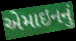
એમાઇનનું